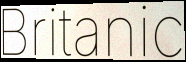
Britanic